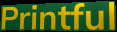
Printful